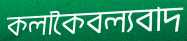
কলাকৈবল্যবাদ